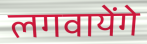
लगवायेंगे